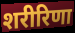
शरीरिणा